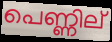
പെണ്ണില്